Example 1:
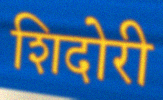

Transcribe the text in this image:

शिदोरी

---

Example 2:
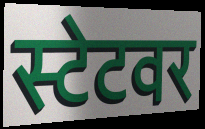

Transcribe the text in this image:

स्टेटवर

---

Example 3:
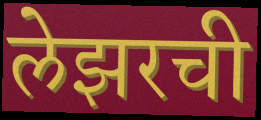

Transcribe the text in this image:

लेझरची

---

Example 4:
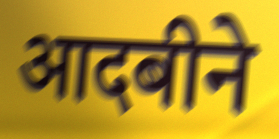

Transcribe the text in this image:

आदबीने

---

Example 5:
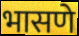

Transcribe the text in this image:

भासणे